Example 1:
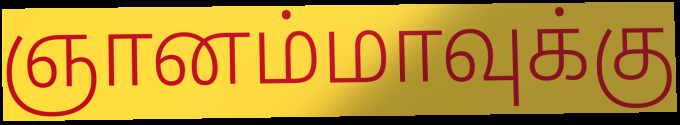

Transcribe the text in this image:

ஞானம்மாவுக்கு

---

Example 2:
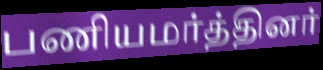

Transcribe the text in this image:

பணியமர்த்தினர்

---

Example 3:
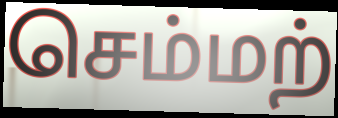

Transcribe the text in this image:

செம்மற்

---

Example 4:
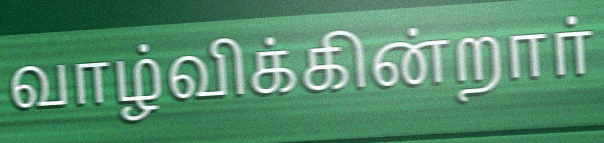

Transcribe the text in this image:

வாழ்விக்கின்றார்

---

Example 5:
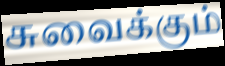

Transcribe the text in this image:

சுவைக்கும்